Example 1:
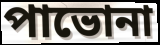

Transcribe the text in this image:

পাভোনা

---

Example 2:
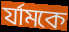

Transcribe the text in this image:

র্যামকে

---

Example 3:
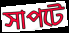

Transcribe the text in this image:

সাপটে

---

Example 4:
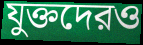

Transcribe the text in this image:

যুক্তদেরও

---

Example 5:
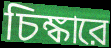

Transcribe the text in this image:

চিঙ্কারে